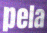
pela